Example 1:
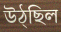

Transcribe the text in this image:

উঠ্ছিল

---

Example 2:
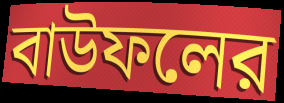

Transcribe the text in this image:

বাউফলের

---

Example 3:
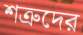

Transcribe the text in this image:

শত্রুদের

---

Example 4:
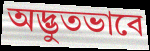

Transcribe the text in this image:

অদ্ভুতভাবে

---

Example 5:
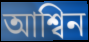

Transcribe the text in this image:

আশ্বিন